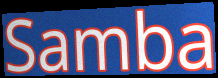
Samba